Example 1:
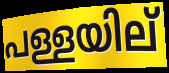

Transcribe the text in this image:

പള്ളയില്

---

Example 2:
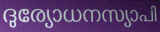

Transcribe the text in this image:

ദുര്യോധനസ്യാപി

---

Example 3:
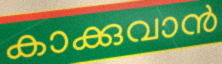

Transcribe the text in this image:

കാക്കുവാൻ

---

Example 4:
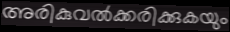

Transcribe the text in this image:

അരികുവൽക്കരിക്കുകയും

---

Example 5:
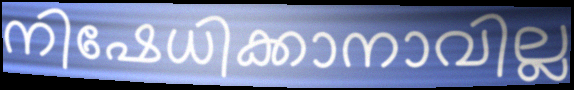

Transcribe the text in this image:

നിഷേധിക്കാനാവില്ല